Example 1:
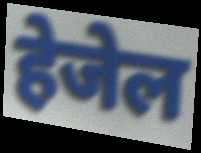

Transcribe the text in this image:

हेजेल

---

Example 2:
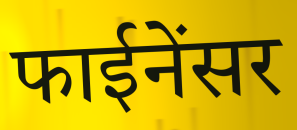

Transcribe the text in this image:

फाईनेंसर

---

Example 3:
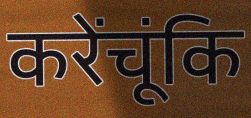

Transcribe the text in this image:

करेंचूंकि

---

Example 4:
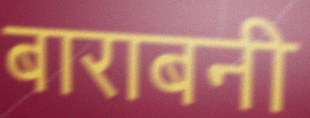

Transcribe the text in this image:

बाराबनी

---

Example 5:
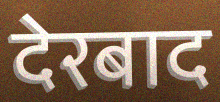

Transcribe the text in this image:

देरबाद